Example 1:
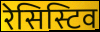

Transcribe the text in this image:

रेसिस्टिव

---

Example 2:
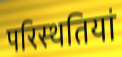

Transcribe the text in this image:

परिस्थतियां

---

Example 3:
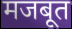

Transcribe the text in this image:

मजबूत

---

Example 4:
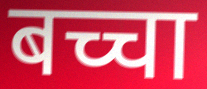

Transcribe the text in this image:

बच्चा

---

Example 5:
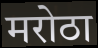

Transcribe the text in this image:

मरोठा